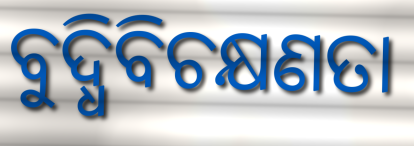
ବୁଦ୍ଧିବିଚକ୍ଷଣତା